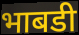
भाबडी